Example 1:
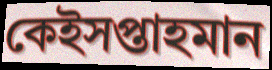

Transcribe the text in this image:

কেইসপ্তাহমান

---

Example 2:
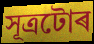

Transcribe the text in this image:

সূত্ৰটোৰ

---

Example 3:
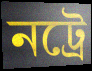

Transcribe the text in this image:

নট্ৰে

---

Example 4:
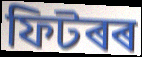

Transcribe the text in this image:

ফিটৰৰ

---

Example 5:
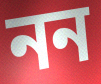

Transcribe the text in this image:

নন